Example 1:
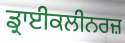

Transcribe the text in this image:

ਡ੍ਰਾਈਕਲੀਨਰਜ਼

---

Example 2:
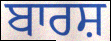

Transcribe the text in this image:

ਬਾਰਸ਼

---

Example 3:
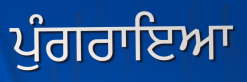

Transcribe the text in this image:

ਪੁੰਗਰਾਇਆ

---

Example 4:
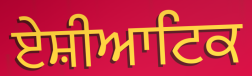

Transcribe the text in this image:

ਏਸ਼ੀਆਟਿਕ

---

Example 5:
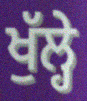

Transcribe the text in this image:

ਖੁੱਲ੍ਹੇ